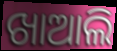
ଖାଆଲି